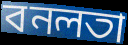
বনলতা